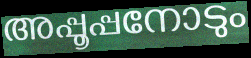
അപ്പൂപ്പനോടും